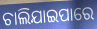
ଚାଲିଯାଇପାରେ